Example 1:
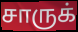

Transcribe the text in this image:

சாருக்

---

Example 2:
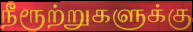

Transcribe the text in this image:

நீரூற்றுகளுக்கு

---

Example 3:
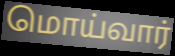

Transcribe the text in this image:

மொய்வார்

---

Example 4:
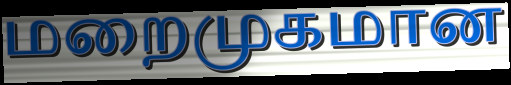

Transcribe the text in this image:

மறைமுகமான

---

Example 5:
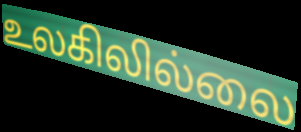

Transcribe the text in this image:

உலகிலில்லை